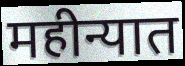
महीन्यात